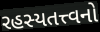
રહસ્યતત્ત્વનો